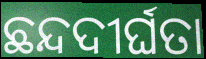
ଛନ୍ଦଦୀର୍ଘତା